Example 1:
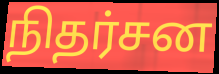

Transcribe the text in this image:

நிதர்சன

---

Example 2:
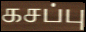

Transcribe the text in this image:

கசப்பு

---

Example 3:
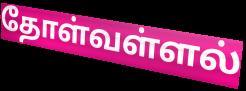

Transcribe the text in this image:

தோள்வள்ளல்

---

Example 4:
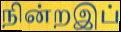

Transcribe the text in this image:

நின்றஇப்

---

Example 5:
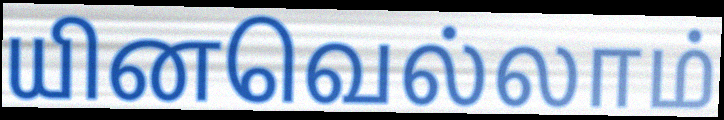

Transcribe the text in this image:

யினவெல்லாம்